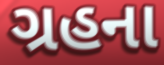
ગ્રહના